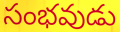
సంభవుడు